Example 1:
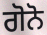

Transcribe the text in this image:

ਗੋਨੋ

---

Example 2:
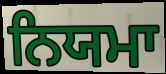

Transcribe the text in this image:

ਨਿਯਮਾ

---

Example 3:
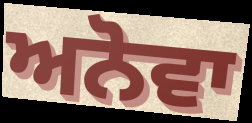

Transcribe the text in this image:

ਅਨੋਵਾ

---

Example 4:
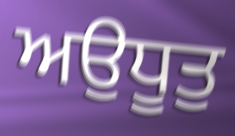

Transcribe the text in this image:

ਅਉਧੂਤੁ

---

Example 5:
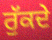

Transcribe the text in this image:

ਰੁੱਕਦੇ